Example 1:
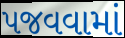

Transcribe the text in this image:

પજવવામાં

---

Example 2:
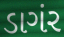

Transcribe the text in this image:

ડાગંર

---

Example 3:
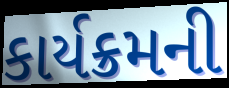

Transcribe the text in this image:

કાર્યક્રમની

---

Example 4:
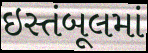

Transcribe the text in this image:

ઇસ્તંબૂલમાં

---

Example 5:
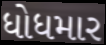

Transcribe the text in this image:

ધોધમાર